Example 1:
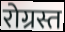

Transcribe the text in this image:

रोग्रस्त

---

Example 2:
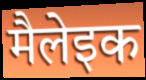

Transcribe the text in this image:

मैलेइक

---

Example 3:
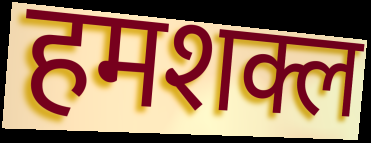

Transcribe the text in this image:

हमशक्ल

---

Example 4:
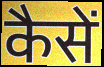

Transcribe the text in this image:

कैसें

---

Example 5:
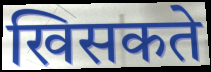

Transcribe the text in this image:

खिसकते